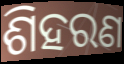
ଶିହରଣ